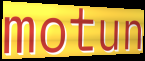
motun